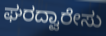
ಘರದ್ವಾರೇಸು